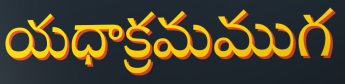
యధాక్రమముగ